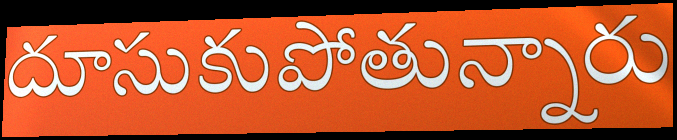
దూసుకుపోతున్నారు